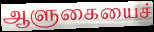
ஆளுகையைச்